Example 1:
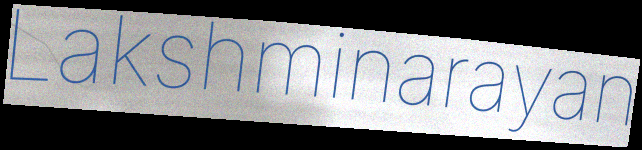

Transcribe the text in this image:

Lakshminarayan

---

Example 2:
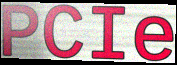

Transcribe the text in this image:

PCIe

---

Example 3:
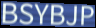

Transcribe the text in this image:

BSYBJP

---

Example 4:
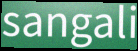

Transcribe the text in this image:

sangali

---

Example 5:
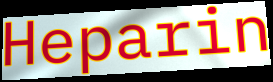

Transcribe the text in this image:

Heparin